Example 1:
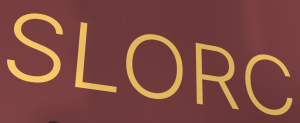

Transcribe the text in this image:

SLORC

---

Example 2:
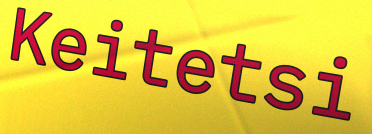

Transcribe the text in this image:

Keitetsi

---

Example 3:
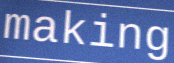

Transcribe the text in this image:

making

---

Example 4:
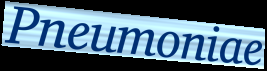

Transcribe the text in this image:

Pneumoniae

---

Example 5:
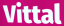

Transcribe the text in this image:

Vittal